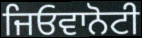
ਜਿਓਵਾਨੋਟੀ